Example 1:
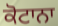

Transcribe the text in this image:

ਕੋਟਾਨਾ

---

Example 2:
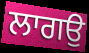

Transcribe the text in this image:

ਲਾਗਉ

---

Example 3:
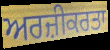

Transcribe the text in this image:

ਅਰਜ਼ੀਕਰਤਾ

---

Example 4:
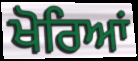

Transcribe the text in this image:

ਖੋਰਿਆਂ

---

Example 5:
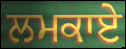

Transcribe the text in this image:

ਲਮਕਾਏ